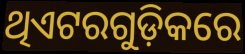
ଥିଏଟରଗୁଡ଼ିକରେ